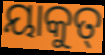
ୟାକୁତ୍